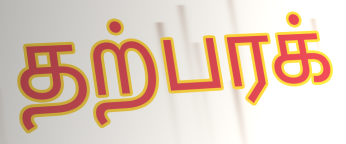
தற்பரக்